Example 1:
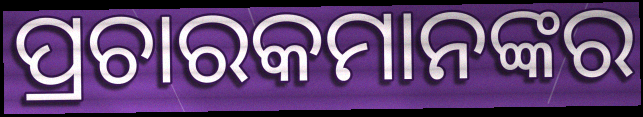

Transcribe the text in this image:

ପ୍ରଚାରକମାନଙ୍କର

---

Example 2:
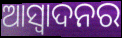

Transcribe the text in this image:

ଆସ୍ବାଦନର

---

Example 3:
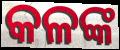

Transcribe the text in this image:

କଳଙ୍କ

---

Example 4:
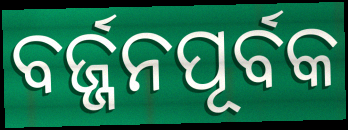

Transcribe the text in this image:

ବର୍ଜ୍ଜନପୂର୍ବକ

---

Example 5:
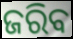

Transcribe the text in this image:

ଜରିବ